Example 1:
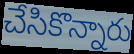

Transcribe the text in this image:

చేసికొన్నారు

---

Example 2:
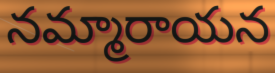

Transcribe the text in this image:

నమ్మారాయన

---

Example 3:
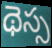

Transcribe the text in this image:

థెస్స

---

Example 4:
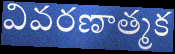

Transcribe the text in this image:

వివరణాత్మక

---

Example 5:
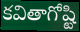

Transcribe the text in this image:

కవితాగోష్టి